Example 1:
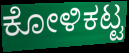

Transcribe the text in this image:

ಕೋಳಿಕಟ್ಟ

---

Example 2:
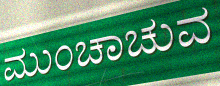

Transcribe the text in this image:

ಮುಂಚಾಚುವ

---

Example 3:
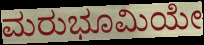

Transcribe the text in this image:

ಮರುಭೂಮಿಯೇ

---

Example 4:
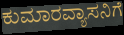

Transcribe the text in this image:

ಕುಮಾರವ್ಯಾಸನಿಗೆ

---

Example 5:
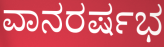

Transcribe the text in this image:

ವಾನರರ್ಷಭ